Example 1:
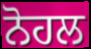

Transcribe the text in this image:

ਨੋਹਲ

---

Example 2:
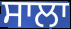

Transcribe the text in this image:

ਸਾਲਾ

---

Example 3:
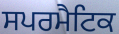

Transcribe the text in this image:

ਸਪਰਮੈਟਿਕ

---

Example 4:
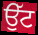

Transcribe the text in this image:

ਉੱਟ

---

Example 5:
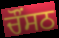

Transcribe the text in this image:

ਚੌਂਸਠ